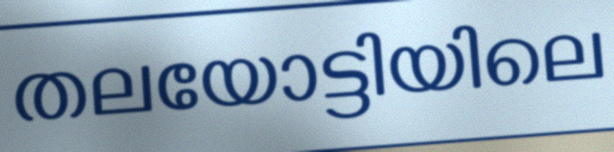
തലയോട്ടിയിലെ